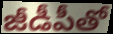
జీడీపీతో